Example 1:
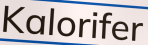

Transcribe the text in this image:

Kalorifer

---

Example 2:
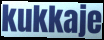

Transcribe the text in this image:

kukkaje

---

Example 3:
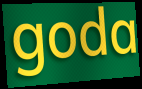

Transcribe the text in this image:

goda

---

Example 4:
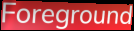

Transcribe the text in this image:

Foreground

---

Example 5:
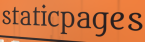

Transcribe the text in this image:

staticpages